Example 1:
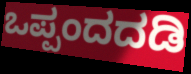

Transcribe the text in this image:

ಒಪ್ಪಂದದಡಿ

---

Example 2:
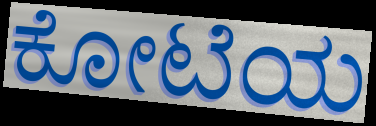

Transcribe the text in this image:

ಕೋಟೆಯ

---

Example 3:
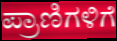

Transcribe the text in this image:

ಪ್ರಾಣಿಗಳಿಗೆ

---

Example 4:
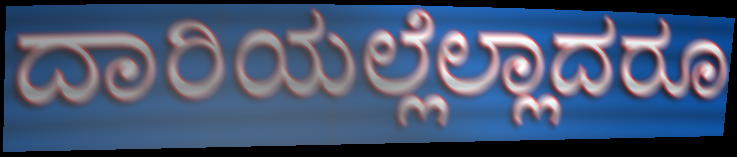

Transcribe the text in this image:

ದಾರಿಯಲ್ಲೆಲ್ಲಾದರೂ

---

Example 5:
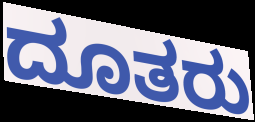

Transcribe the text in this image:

ದೂತರು